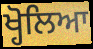
ਖ੍ਹੋਲਿਆ